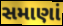
સમાણાં